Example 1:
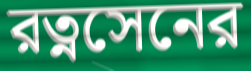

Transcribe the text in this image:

রত্নসেনের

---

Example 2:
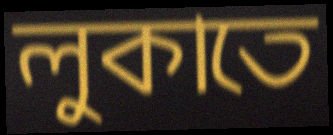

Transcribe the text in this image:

লুকাতে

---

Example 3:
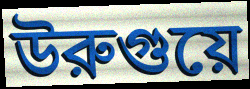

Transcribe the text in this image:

উরুগুয়ে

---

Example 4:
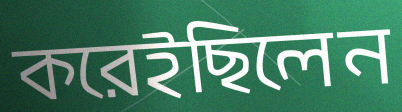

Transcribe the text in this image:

করেইছিলেন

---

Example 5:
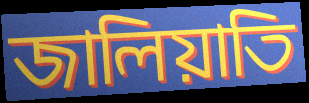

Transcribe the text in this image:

জালিয়াতি